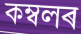
কম্বলৰ